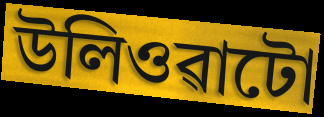
উলিওৱাটো